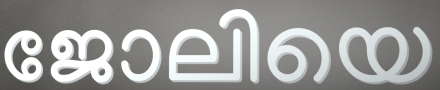
ജോലിയെ